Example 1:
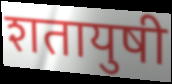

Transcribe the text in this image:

शतायुषी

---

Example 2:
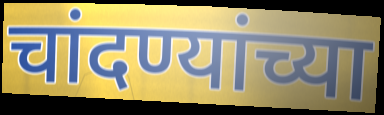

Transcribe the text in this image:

चांदण्यांच्या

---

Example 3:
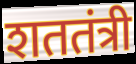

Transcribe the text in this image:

शततंत्री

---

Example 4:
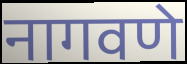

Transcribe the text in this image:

नागवणे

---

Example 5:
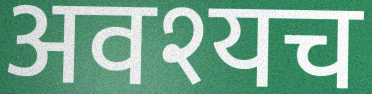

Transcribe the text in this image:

अवश्यच